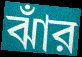
ঝাঁর